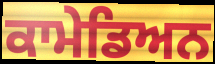
ਕਾਮੇਡਿਅਨ